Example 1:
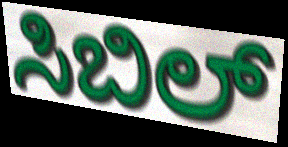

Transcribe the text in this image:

ಸಿಬಿಲ್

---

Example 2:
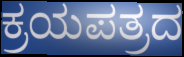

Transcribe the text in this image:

ಕ್ರಯಪತ್ರದ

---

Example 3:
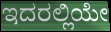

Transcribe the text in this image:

ಇದರಲ್ಲಿಯೇ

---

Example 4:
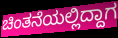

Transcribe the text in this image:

ಚಿಂತನೆಯಲ್ಲಿದ್ದಾಗ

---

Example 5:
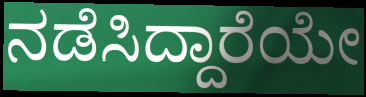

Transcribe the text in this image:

ನಡೆಸಿದ್ದಾರೆಯೇ